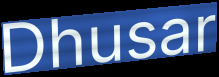
Dhusar